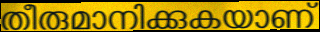
തീരുമാനിക്കുകയാണ്